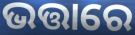
ଭତ୍ତାରେ